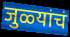
जुळ्यांचं